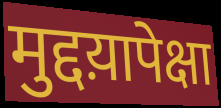
मुद्दय़ापेक्षा